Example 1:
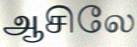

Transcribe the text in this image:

ஆசிலே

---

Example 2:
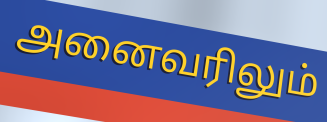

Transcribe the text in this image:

அனைவரிலும்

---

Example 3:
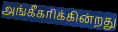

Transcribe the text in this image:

அங்கீகரிக்கின்றது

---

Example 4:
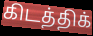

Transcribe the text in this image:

கிடத்திக்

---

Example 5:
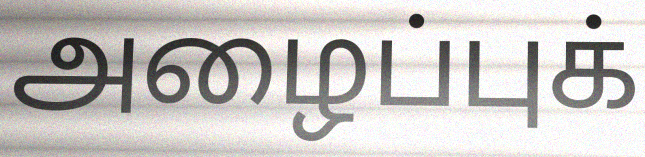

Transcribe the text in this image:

அழைப்புக்